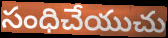
సంధిచేయుచు